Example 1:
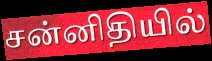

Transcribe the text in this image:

சன்னிதியில்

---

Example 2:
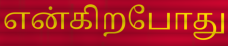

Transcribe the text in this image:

என்கிறபோது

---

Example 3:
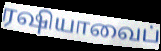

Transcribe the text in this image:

ரஷியாவைப்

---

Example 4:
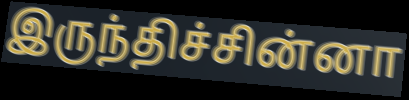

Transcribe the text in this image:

இருந்திச்சின்னா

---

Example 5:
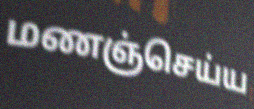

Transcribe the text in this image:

மணஞ்செய்ய